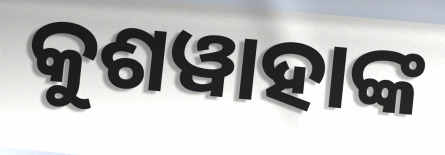
କୁଶୱାହାଙ୍କ